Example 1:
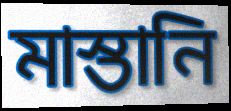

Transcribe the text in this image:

মাস্তানি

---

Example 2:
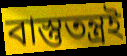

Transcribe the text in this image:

বাস্তুতন্ত্রই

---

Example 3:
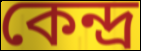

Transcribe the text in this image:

কেন্দ্র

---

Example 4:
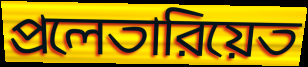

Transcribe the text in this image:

প্রলেতারিয়েত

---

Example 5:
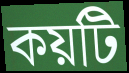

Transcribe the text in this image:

কয়টি